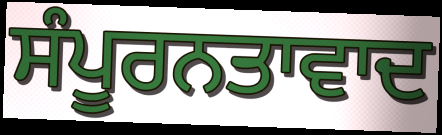
ਸੰਪੂਰਨਤਾਵਾਦ